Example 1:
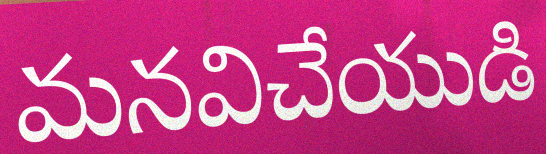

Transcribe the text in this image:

మనవిచేయుడి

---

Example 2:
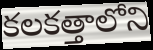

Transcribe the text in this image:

కలకత్తాలోని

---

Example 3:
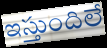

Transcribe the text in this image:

ఇస్తుందిలే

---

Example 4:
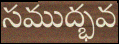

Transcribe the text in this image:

సముద్భవ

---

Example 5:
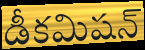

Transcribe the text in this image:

డీకమిషన్